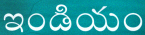
ఇండియం